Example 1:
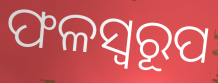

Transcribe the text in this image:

ଫଳସ୍ୱରୂପ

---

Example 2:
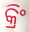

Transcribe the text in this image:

କ୍ରିଂ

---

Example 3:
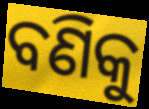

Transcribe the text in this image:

ବଣିକୁ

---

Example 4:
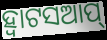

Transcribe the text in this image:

ହ୍ବାଟସଆପ୍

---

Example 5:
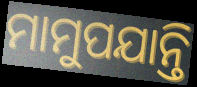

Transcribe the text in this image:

ମାମୁପଯାନ୍ତି